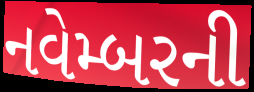
નવેમ્બરની